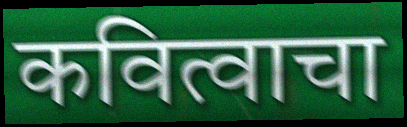
कवित्वाचा